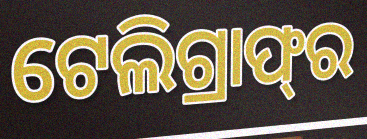
ଟେଲିଗ୍ରାଫ୍‌ର